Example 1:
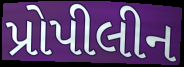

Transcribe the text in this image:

પ્રોપીલીન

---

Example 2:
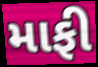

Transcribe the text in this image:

માફી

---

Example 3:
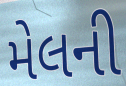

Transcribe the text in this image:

મેલની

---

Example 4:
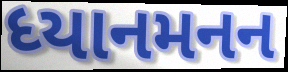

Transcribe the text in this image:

ધ્યાનમનન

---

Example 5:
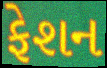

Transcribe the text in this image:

ફેશન